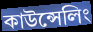
কাউন্সেলিং